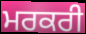
ਮਰਕਰੀ